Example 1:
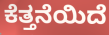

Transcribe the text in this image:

ಕೆತ್ತನೆಯಿದೆ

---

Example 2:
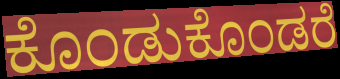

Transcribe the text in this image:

ಕೊಂಡುಕೊಂಡರೆ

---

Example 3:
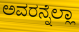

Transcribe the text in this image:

ಅವರನ್ನೆಲ್ಲಾ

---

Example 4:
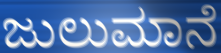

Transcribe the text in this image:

ಜುಲುಮಾನೆ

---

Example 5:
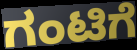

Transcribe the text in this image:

ಗಂಟಿಗೆ